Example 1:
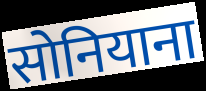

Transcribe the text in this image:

सोनियाना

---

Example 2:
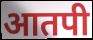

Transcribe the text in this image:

आतपी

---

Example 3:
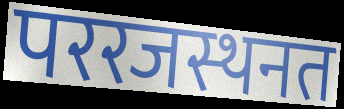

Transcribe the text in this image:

पररजस्थनत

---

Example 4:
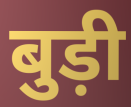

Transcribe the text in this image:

बुड़ी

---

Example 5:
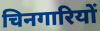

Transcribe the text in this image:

चिनगारियों